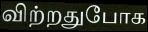
விற்றதுபோக